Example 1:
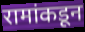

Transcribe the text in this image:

रामांकडून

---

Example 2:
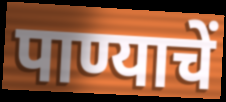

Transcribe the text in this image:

पाण्याचें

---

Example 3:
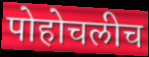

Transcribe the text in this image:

पोहोचलीच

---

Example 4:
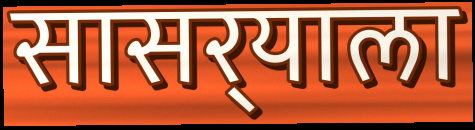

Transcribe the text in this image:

सासर्‍याला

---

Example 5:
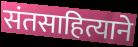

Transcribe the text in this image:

संतसाहित्याने